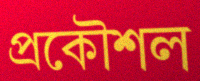
প্রকৌশল